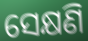
ସେକ୍ଷଣି